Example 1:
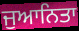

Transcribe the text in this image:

ਜੁਆਨਿਤਾ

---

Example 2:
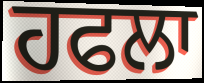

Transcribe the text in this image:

ਹਫਲਾ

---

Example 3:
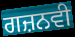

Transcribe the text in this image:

ਗਜ਼ਨਵੀ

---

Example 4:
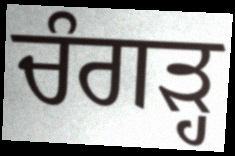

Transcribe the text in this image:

ਚੰਗੜ੍ਹ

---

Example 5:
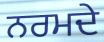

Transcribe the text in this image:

ਨਰਮਦੇ